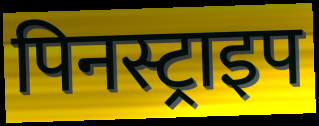
पिनस्ट्राइप